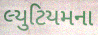
લ્યુટિયમના